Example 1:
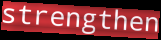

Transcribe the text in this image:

strengthen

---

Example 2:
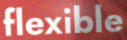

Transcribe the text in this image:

flexible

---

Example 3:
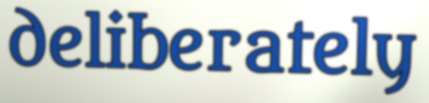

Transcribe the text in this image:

deliberately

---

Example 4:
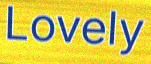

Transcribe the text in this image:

Lovely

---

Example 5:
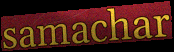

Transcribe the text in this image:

samachar